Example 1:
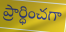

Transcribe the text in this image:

ప్రార్ధించగా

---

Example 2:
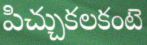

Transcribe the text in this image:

పిచ్చుకలకంటె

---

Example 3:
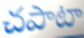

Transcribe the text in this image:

చపాటా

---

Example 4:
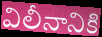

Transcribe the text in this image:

విలీనానికి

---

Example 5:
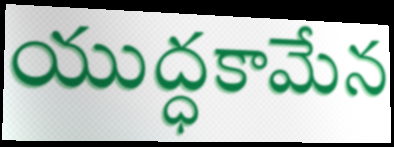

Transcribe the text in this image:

యుద్ధకామేన